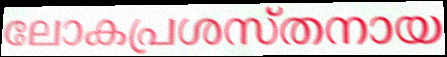
ലോകപ്രശസ്തനായ